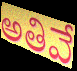
అతివే